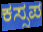
ಕಸ್ಸಪ